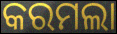
କରମଲା